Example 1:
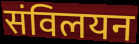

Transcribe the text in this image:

संविलयन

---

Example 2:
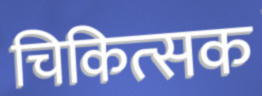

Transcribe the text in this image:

चिकित्‍सक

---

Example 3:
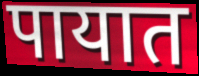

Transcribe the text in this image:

पायात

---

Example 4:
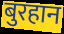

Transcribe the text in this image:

बुरहान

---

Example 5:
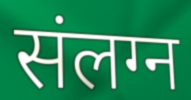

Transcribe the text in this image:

संलग्न